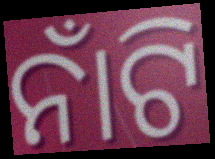
ନାଁଟି